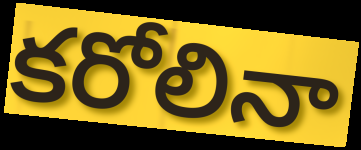
కరోలినా